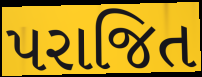
પરાજિત